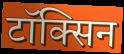
टॉक्सिन